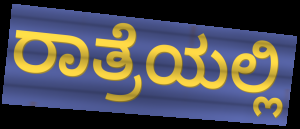
ರಾತ್ರೆಯಲ್ಲಿ